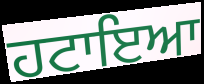
ਹਟਾਇਆ